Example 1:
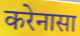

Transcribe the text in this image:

करेनासा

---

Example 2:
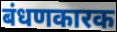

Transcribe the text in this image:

बंधणकारक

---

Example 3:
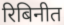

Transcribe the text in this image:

रिबिनीत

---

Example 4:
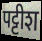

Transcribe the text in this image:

पट्टीश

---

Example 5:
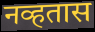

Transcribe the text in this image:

नव्हतास